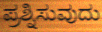
ಪ್ರಶ್ನಿಸುವುದು